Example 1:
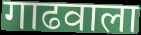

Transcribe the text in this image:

गाढवाला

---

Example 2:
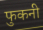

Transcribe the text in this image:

फुकनी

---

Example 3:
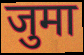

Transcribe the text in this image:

जुमा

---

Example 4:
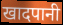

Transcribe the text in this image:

खादपानी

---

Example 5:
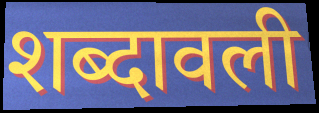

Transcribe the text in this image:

शब्दावली